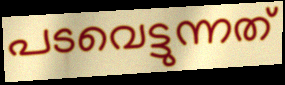
പടവെട്ടുന്നത്